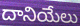
దానియేలు